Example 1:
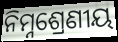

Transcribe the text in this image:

ନିମ୍ନଶ୍ରେଣୀୟ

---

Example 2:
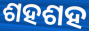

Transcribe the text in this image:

ଶହଶହ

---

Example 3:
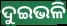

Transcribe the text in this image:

ଦୁଇଭଳି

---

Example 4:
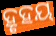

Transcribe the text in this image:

ହୃହୟ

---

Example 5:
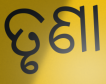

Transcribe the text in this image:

ତୃଣା